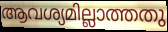
ആവശ്യമില്ലാത്തതു